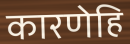
कारणेहि